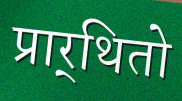
प्रार्थितो